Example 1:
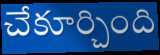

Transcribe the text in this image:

చేకూర్చింది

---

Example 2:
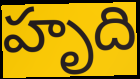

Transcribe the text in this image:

హృది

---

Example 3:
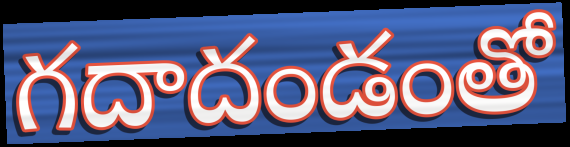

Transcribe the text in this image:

గదాదండంతో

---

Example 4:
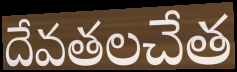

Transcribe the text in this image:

దేవతలచేత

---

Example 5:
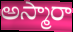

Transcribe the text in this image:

అస్మారా